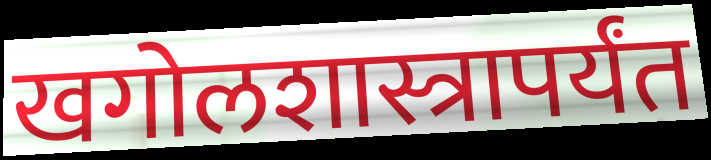
खगोलशास्त्रापर्यंत